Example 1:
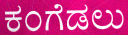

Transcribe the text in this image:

ಕಂಗೆಡಲು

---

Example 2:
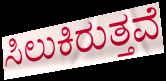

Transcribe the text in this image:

ಸಿಲುಕಿರುತ್ತವೆ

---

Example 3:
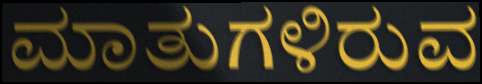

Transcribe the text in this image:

ಮಾತುಗಳಿರುವ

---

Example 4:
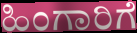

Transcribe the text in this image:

ಹಿಂಗಾರಿಗೆ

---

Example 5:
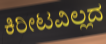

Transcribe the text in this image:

ಕಿರೀಟವಿಲ್ಲದ